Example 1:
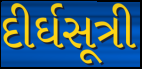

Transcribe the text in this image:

દીર્ઘસૂત્રી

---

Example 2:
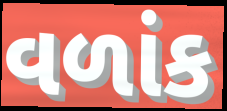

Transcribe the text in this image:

વળાંક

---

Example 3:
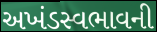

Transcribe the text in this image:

અખંડસ્વભાવની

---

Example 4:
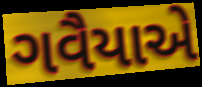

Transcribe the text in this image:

ગવૈયાએ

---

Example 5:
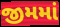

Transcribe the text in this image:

જીમમાં